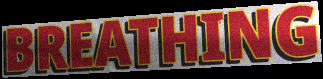
BREATHING